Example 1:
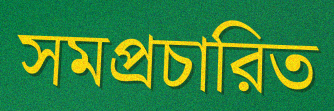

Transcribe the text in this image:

সমপ্রচারিত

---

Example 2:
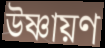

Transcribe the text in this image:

উষ্ণায়ণ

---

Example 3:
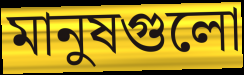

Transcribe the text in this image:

মানুষগুলো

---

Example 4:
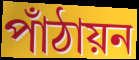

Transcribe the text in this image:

পাঁঠায়ন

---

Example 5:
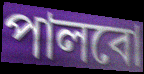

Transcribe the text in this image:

পালবো